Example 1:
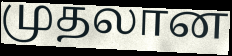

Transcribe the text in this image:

முதலான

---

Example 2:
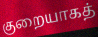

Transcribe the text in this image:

குறையாகத்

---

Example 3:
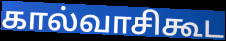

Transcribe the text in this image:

கால்வாசிகூட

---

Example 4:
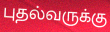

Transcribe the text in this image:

புதல்வருக்கு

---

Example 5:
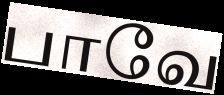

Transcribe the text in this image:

பாவே